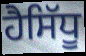
ਹੈਸਿੱਧੂ